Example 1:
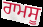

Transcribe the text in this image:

ਰਾਮਸੂ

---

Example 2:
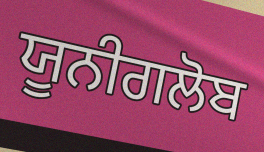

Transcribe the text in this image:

ਯੂਨੀਗਲੋਬ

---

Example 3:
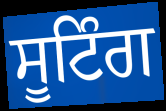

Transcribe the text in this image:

ਸੂਟਿੰਗ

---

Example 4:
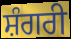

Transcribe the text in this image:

ਸ਼ੰਗਰੀ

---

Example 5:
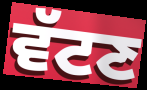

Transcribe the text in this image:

ਵੱਟਣ